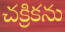
చక్రికను